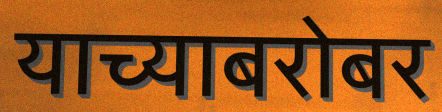
याच्याबरोबर